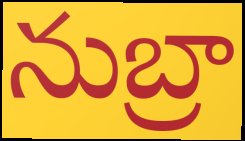
నుబ్రా